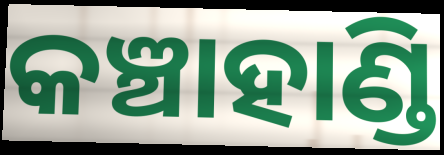
କଞ୍ଚାହାଣ୍ଡି